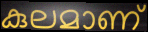
കുലമാണ്